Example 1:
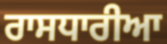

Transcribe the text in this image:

ਰਾਸਧਾਰੀਆ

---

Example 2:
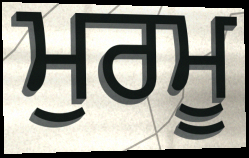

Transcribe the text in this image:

ਮੁਰਮੂ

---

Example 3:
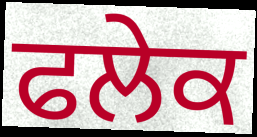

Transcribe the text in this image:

ਫਲੇਕ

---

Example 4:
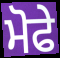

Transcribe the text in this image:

ਮੋਫੇ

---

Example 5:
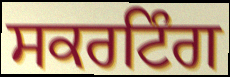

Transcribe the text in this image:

ਸਕਰਟਿੰਗ